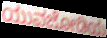
ಯುವಜೋಡಿಯ